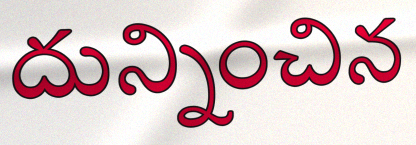
దున్నించిన